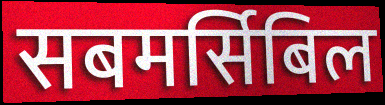
सबमर्सिबिल